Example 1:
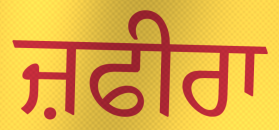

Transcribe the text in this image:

ਜ਼ਫੀਰਾ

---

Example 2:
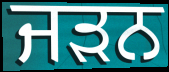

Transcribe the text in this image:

ਜੜਨ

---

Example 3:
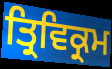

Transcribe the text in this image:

ਤ੍ਰਿਵਿਕ੍ਰਮ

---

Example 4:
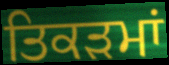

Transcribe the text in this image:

ਤਿਕੜਮਾਂ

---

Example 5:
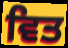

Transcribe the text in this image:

ਵਿਤ